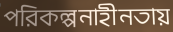
পরিকল্পনাহীনতায়